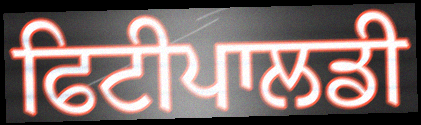
ਫਿਟੀਪਾਲਡੀ